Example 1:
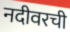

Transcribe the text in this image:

नदीवरची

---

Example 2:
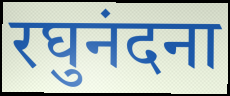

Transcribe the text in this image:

रघुनंदना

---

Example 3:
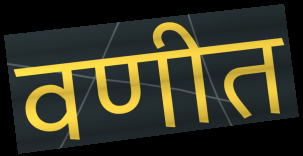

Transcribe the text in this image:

वणीत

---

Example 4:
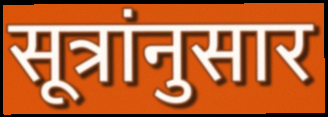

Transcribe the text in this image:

सूत्रांनुसार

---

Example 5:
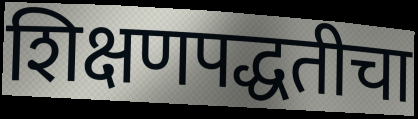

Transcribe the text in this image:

शिक्षणपद्धतीचा